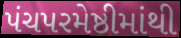
પંચપરમેષ્ઠીમાંથી